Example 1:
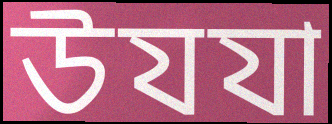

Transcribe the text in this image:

উযযা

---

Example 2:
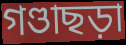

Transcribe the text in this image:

গণ্ডাছড়া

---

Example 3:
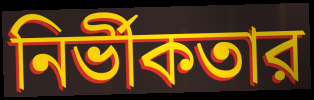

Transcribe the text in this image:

নির্ভীকতার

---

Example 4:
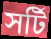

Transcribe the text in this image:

সর্টি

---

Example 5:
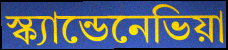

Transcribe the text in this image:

স্ক্যান্ডেনেভিয়া